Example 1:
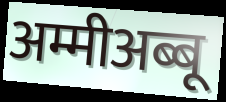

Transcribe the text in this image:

अम्मीअब्बू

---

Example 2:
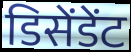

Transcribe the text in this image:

डिसेंडेंट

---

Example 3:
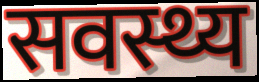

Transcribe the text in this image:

सवस्थ्य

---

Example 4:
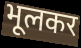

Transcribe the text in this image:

भूलकर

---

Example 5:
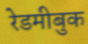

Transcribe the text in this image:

रेडमीबुक